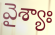
వైశ్యాః